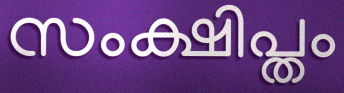
സംക്ഷിപ്തം